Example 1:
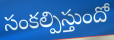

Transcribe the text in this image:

సంకల్పిస్తుందో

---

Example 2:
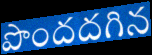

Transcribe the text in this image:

పొందదగిన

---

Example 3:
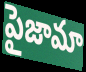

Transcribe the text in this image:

పైజామా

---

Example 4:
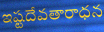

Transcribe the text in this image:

ఇష్టదేవతారాధన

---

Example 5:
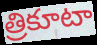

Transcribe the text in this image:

త్రికూటా